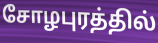
சோழபுரத்தில்